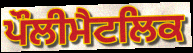
ਪੌਲੀਮੈਟਲਿਕ